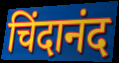
चिंदानंद